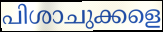
പിശാചുക്കളെ